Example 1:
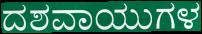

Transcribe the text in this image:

ದಶವಾಯುಗಳ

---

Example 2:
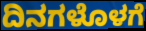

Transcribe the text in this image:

ದಿನಗಳೊಳಗೆ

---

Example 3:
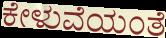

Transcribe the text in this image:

ಕೇಳುವೆಯಂತೆ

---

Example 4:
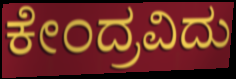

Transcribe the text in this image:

ಕೇಂದ್ರವಿದು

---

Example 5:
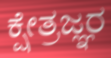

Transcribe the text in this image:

ಕ್ಷೇತ್ರಜ್ಞರ